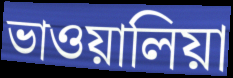
ভাওয়ালিয়া